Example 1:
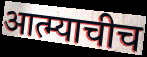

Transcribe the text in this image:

आत्म्याचीच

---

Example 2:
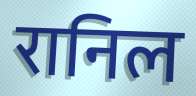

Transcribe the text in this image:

रानिल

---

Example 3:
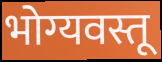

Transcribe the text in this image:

भोग्यवस्तू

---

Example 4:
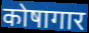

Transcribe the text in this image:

कोषागार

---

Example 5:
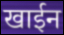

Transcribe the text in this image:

खाईन